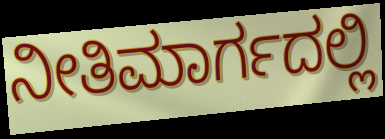
ನೀತಿಮಾರ್ಗದಲ್ಲಿ